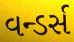
વન્ડર્સ